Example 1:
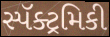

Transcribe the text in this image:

સ્પૅક્ટ્રમિકી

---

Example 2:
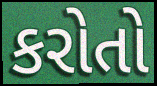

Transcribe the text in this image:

કરોતો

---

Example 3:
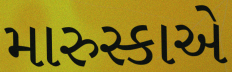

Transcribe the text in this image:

મારુસ્કાએ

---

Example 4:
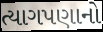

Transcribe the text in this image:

ત્યાગપણાનો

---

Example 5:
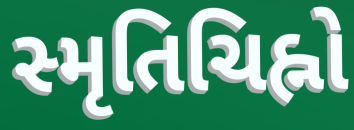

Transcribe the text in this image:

સ્મૃતિચિહ્નો